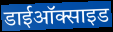
डाईऑक्साइड